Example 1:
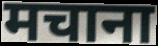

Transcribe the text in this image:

मचाना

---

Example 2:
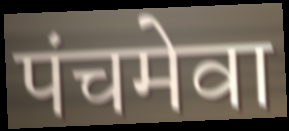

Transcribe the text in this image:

पंचमेवा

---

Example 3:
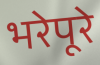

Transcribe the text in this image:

भरेपूरे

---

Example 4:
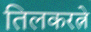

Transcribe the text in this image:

तिलकरत्ने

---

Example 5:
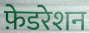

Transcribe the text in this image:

फ़ेडरेशन